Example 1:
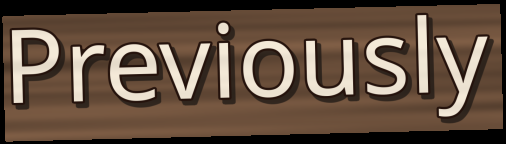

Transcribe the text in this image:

Previously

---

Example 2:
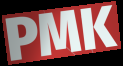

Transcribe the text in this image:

PMK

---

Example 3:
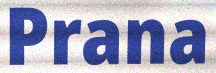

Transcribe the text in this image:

Prana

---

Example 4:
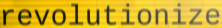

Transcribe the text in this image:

revolutionize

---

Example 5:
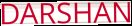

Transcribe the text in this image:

DARSHAN